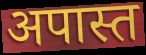
अपास्त